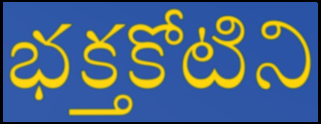
భక్తకోటిని